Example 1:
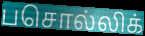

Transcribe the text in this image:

பசொல்லிக்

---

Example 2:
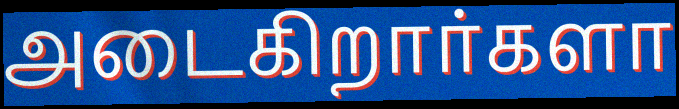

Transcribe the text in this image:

அடைகிறார்களா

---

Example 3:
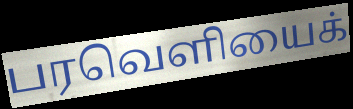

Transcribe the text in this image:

பரவெளியைக்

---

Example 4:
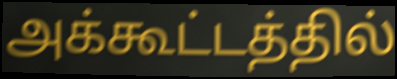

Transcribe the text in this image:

அக்கூட்டத்தில்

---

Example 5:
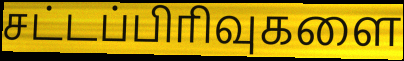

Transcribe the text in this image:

சட்டப்பிரிவுகளை